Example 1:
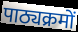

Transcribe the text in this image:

पाठ्यक्रमों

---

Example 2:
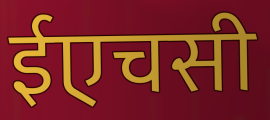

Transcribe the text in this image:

ईएचसी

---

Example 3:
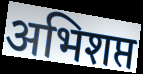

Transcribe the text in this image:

अभिशप्त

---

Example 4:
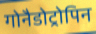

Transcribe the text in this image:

गोनैडोट्रोपिन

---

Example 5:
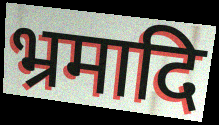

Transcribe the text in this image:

भ्रमादि